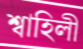
শ্বাহিলী